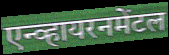
एन्व्हायरनमेंटल